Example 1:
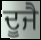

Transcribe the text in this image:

ਦੂਜੈ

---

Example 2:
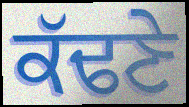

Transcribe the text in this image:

ਕੱਢਣੇ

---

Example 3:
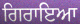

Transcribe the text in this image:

ਗਿਰਾਇਆ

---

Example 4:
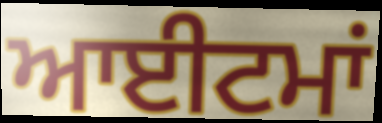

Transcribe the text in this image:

ਆਈਟਮਾਂ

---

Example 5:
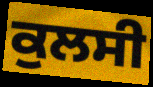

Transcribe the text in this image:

ਕੁਲਸੀ